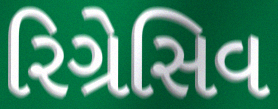
રિગ્રેસિવ